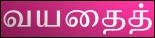
வயதைத்